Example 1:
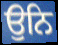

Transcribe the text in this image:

ਉਨਿ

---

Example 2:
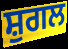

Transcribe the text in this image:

ਸ਼ੁਗਲ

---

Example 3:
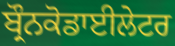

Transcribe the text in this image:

ਬ੍ਰੌਨਕੋਡਾਈਲੇਟਰ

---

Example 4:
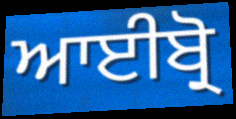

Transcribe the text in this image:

ਆਈਬ੍ਰੋ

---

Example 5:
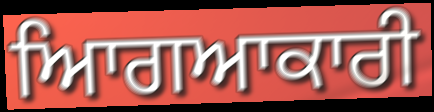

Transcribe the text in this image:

ਆਿਗਆਕਾਰੀ